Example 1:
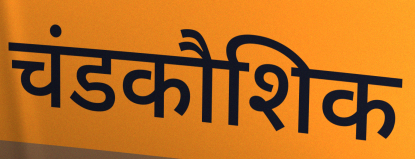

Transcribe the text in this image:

चंडकौशिक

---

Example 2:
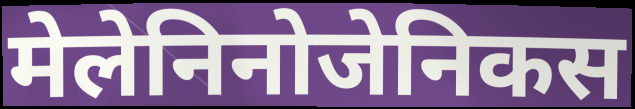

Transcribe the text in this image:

मेलेनिनोजेनिकस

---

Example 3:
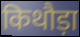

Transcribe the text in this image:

किथौड़ा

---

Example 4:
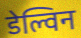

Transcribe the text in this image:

डेल्विन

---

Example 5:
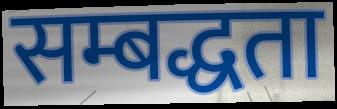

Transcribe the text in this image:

सम्‍बद्धता